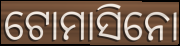
ଟୋମାସିନୋ